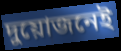
দুয়োজনেই